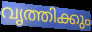
വൃത്തിക്കും